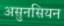
असुनसियन